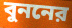
বুননের